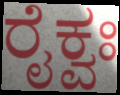
ರೈಕ್ವಃ